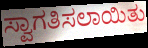
ಸ್ವಾಗತಿಸಲಾಯಿತು